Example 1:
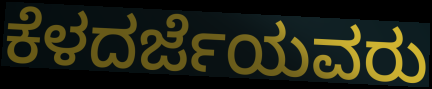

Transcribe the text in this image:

ಕೆಳದರ್ಜೆಯವರು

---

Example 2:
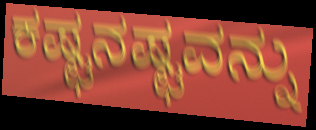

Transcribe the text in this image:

ಕಷ್ಟನಷ್ಟವನ್ನು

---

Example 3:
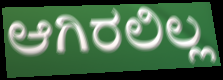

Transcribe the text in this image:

ಆಗಿರಲಿಲ್ಲ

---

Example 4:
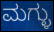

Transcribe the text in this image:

ಮಗ್ಳು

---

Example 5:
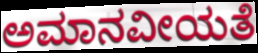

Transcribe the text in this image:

ಅಮಾನವೀಯತೆ